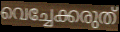
വെച്ചേക്കരുത്